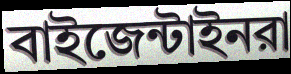
বাইজেন্টাইনরা